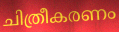
ചിത്രീകരണം